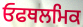
ਓਫਥਲਮਿਕ